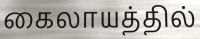
கைலாயத்தில்